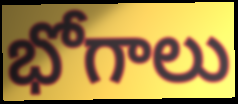
భోగాలు